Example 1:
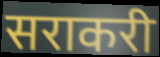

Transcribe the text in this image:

सराकरी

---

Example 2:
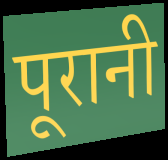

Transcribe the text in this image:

पूरानी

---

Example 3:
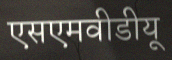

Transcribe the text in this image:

एसएमवीडीयू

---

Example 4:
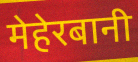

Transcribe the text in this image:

मेहेरबानी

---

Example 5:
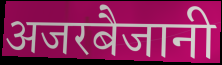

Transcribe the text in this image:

अजरबैजानी